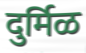
दुर्मिळ